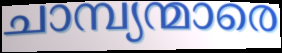
ചാമ്പ്യന്മാരെ